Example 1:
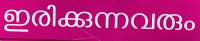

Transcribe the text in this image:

ഇരിക്കുന്നവരും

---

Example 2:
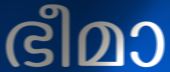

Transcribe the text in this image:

ഭീമാ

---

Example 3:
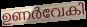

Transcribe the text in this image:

ഉണർവേകി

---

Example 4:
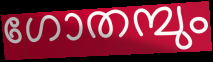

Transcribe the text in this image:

ഗോതമ്പും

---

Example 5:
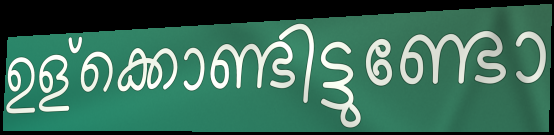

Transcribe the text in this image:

ഉള്ക്കൊണ്ടിട്ടുണ്ടോ